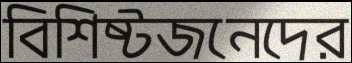
বিশিষ্টজনেদের